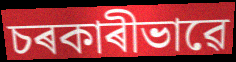
চৰকাৰীভাৱে